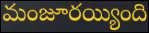
మంజూరయ్యింది